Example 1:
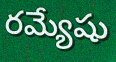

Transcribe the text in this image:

రమ్యేషు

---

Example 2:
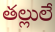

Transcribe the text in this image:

తల్లులే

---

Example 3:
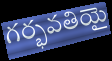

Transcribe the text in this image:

గర్భవతియై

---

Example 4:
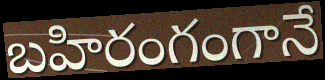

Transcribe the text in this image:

బహిరంగంగానే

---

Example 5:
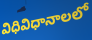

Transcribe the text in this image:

విధివిధానాలలో